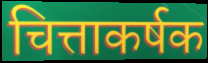
चित्ताकर्षक